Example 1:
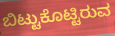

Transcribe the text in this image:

ಬಿಟ್ಟುಕೊಟ್ಟಿರುವ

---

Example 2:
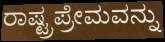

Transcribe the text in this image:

ರಾಷ್ಟ್ರಪ್ರೇಮವನ್ನು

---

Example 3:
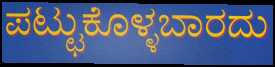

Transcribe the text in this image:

ಪಟ್ಟುಕೊಳ್ಳಬಾರದು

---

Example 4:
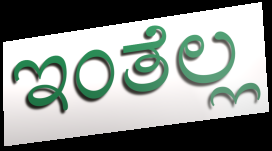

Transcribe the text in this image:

ಇಂತೆಲ್ಲ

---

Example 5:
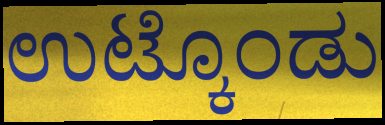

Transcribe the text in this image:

ಉಟ್ಕೊಂಡು